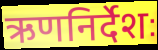
ऋणनिर्देशः